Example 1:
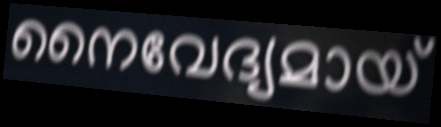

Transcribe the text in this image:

നൈവേദ്യമായ്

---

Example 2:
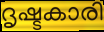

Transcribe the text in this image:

ദൃഷ്ടകാരി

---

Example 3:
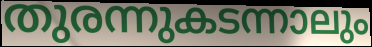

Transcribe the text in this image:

തുരന്നുകടന്നാലും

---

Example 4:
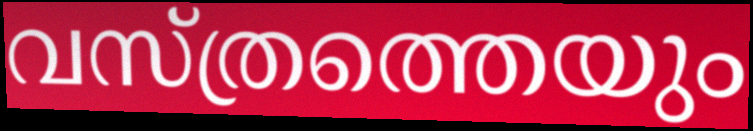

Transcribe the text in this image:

വസ്ത്രത്തെയും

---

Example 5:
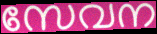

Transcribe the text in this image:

സേവന